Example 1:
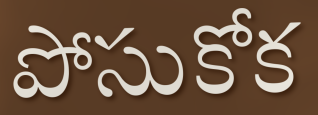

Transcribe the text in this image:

పోసుకోక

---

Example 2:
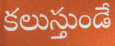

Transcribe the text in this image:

కలుస్తుండే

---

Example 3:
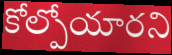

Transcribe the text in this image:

కోల్పోయారని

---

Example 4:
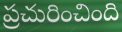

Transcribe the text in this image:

ప్రచురించింది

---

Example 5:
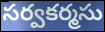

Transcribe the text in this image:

సర్వకర్మసు